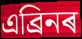
এব্ৰিনৰ